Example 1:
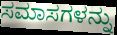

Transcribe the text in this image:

ಸಮಾಸಗಳನ್ನು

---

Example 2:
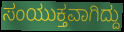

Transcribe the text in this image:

ಸಂಯುಕ್ತವಾಗಿದ್ದು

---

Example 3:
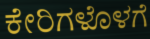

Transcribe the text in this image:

ಕೇರಿಗಳೊಳಗೆ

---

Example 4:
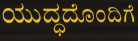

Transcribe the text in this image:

ಯುದ್ಧದೊಂದಿಗೆ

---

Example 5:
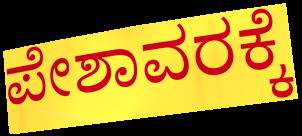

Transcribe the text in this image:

ಪೇಶಾವರಕ್ಕೆ